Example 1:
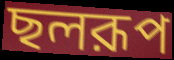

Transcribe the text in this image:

ছলরূপ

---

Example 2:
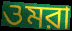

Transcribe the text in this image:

ওমরা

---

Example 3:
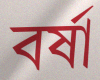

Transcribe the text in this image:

বর্ষা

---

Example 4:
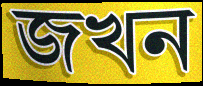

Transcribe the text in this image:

জখন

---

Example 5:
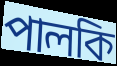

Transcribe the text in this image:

পালকি